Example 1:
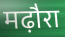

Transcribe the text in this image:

मढ़ौरा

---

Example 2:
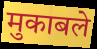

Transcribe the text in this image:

मुकाबले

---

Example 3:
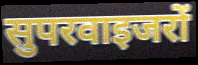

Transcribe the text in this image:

सुपरवाइजरों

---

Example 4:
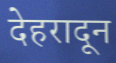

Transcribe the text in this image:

देहरादून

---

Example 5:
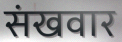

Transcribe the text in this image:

संखवार